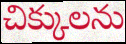
చిక్కులను